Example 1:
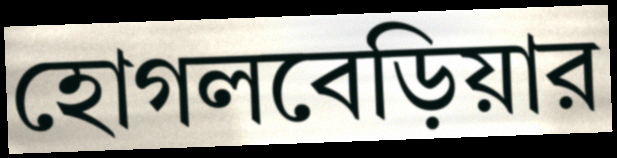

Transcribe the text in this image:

হোগলবেড়িয়ার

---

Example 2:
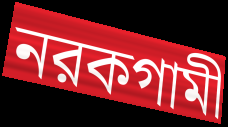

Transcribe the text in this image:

নরকগামী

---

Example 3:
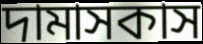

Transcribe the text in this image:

দামাসকাস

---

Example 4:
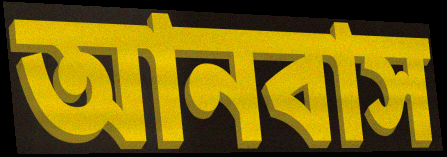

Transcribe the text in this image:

আনবাস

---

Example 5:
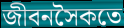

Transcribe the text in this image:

জীবনসৈকতে